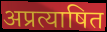
अप्रत्याषित